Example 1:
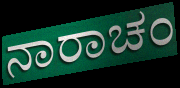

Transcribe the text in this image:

ನಾರಾಚಂ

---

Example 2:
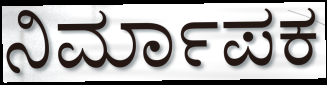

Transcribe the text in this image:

ನಿರ್ಮಾಪಕ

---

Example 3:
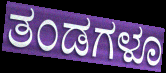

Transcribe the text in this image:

ತಂಡಗಳೂ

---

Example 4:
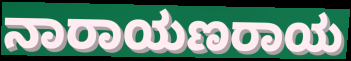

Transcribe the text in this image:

ನಾರಾಯಣರಾಯ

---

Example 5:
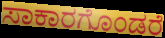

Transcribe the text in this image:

ಸಾಕಾರಗೊಂಡರೆ